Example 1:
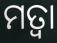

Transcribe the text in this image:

ମତ୍ୱା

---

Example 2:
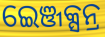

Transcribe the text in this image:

ଇେଞ୍ଜକ୍ସନ୍ର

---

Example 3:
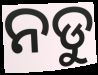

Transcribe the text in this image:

ନଡୁ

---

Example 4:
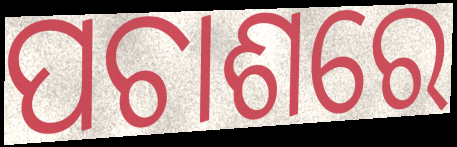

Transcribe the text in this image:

ପଚାଶରେ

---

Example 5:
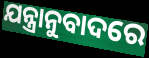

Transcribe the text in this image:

ଯନ୍ତ୍ରାନୁବାଦରେ